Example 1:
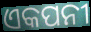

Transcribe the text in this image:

ଏକପନୀ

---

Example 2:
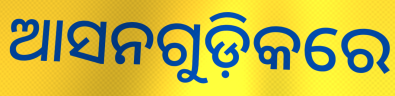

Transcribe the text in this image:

ଆସନଗୁଡ଼ିକରେ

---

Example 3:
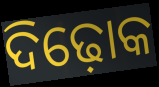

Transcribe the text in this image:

ଦିଢ଼ୋକ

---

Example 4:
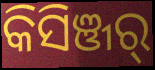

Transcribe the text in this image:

କିସିଞ୍ଜର୍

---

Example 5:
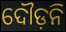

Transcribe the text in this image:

ଦୌଡ଼ନି